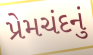
પ્રેમચંદનું